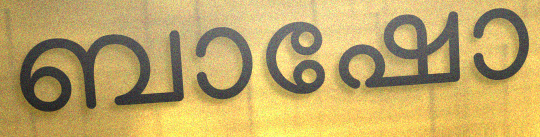
ബാഷോ